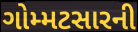
ગોમ્મટસારની